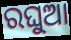
ରଘୁଆ